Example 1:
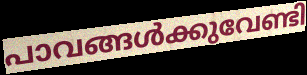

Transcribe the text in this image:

പാവങ്ങൾക്കുവേണ്ടി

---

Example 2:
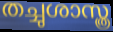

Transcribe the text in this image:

തച്ചുശാസ്ത്ര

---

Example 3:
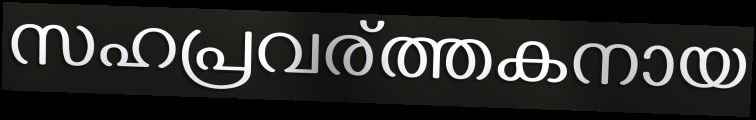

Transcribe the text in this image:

സഹപ്രവര്ത്തകനായ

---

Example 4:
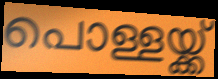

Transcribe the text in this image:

പൊള്ളയ്ക്ക്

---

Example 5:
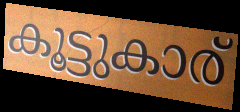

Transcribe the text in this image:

കൂട്ടുകാര്